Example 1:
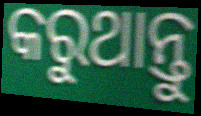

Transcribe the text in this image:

କରୁଥାନ୍ତୁ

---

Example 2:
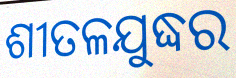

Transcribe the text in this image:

ଶୀତଳଯୁଦ୍ଧର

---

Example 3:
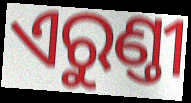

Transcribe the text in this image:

ଏରୁଣ୍ତୀ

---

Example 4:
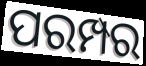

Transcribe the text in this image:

ପରମ୍ପର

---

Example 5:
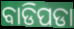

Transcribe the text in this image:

ବାଡିପଡା